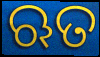
ଋତ